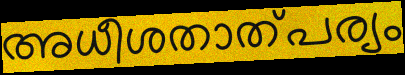
അധീശതാത്പര്യം